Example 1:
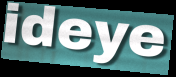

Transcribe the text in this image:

ideye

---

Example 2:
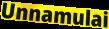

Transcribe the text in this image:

Unnamulai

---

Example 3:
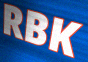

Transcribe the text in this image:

RBK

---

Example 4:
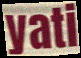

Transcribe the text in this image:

yati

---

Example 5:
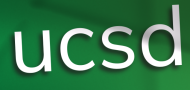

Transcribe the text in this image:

ucsd